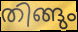
തിങ്ങും